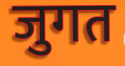
जुगत